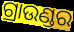
ଗ୍ରାଉଣ୍ଡର